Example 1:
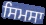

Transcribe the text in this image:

ਸਿਮਸਾ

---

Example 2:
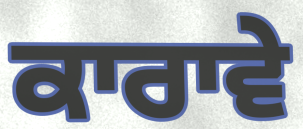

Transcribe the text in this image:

ਕਾਰਾਵੇ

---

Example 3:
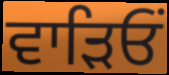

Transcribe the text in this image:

ਵਾੜਿਓਂ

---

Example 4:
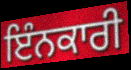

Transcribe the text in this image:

ਇੰਨਕਾਰੀ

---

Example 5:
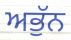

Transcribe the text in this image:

ਅਭੁੱਨ